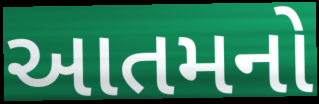
આતમનો